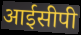
आईसीपी